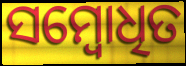
ସମ୍ବୋଧିତ